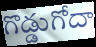
గొడ్డుగోదా